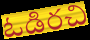
ఓడిరచి